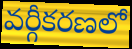
వర్గీకరణలో